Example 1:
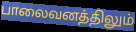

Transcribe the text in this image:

பாலைவனத்திலும்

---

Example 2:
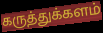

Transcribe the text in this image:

கருத்துக்களம்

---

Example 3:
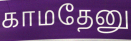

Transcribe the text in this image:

காமதேனு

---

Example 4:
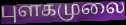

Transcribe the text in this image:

புளகமுலை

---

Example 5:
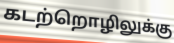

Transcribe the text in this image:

கடற்றொழிலுக்கு